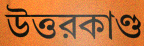
উত্তরকাণ্ড